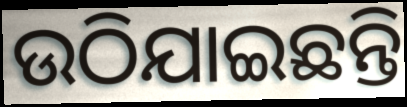
ଉଠିଯାଇଛନ୍ତି